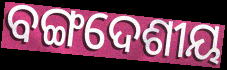
ବଙ୍ଗଦେଶୀୟ